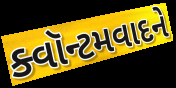
ક્વૉન્ટમવાદને